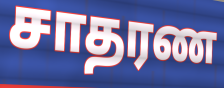
சாதரண